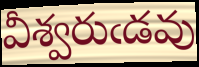
వీశ్వరుఁడవు